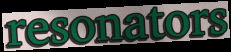
resonators